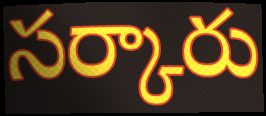
సర్కారు